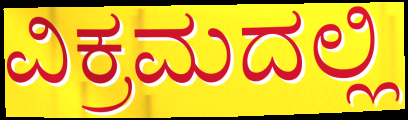
ವಿಕ್ರಮದಲ್ಲಿ